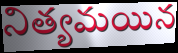
నిత్యమయిన